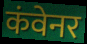
कंवेनर